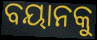
ବୟାନକୁ